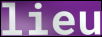
lieu